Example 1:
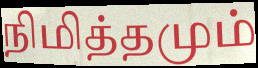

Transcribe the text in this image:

நிமித்தமும்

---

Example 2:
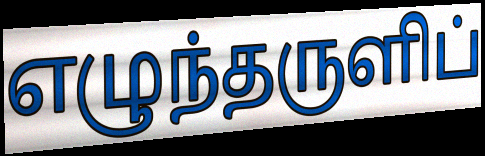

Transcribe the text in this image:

எழுந்தருளிப்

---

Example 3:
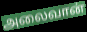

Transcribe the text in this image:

அலைவான்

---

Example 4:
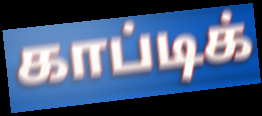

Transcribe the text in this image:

காப்டிக்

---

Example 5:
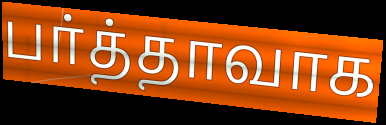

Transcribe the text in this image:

பர்த்தாவாக